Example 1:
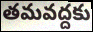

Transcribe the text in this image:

తమవద్దకు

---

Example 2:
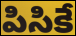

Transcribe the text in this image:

పిసికే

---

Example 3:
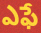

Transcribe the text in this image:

ఎఫే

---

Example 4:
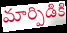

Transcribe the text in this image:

మార్పిడికి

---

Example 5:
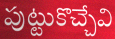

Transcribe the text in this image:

పుట్టుకొచ్చేవి